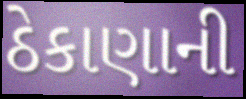
ઠેકાણાની